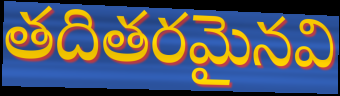
తదితరమైనవి